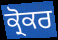
ਕ੍ਰੋਕਰ